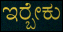
ಇರ‍್ಬೇಕು